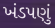
ખંડપણું